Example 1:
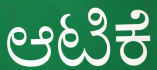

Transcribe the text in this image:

ಆಟಿಕೆ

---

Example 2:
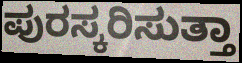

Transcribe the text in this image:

ಪುರಸ್ಕರಿಸುತ್ತಾ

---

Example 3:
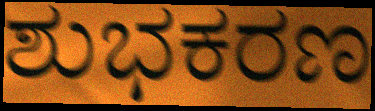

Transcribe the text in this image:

ಶುಭಕರಣ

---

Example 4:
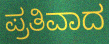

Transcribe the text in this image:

ಪ್ರತಿವಾದ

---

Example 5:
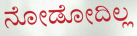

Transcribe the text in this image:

ನೋಡೋದಿಲ್ಲ